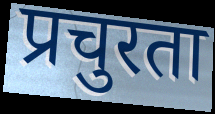
प्रचुरता